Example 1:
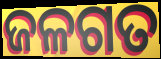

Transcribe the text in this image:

ଜଳଗତ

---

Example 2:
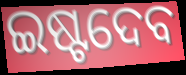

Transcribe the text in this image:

ଇଷ୍ଟଦେବ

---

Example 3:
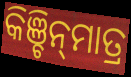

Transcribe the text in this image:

କିଞ୍ଚିନ୍‍ମାତ୍ର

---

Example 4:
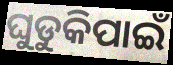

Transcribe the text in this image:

ଘୁଡୁକିପାଇଁ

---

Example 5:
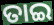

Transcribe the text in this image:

ତାଇ